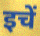
इचें